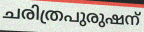
ചരിത്രപുരുഷന്